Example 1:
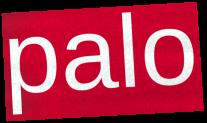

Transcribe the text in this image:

palo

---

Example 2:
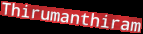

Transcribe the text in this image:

Thirumanthiram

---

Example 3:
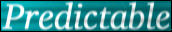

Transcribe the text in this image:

Predictable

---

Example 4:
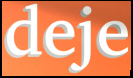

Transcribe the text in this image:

deje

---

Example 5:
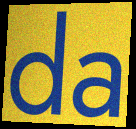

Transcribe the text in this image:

da